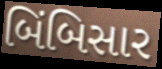
બિંબિસાર